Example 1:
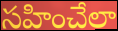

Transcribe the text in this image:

సహించేలా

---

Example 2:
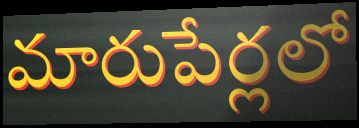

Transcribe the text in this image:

మారుపేర్లలో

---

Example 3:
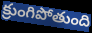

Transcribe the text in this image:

క్రుంగిపోతుంది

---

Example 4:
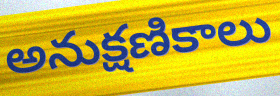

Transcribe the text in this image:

అనుక్షణికాలు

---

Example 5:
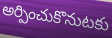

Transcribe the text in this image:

అర్పించుకొనుటకు